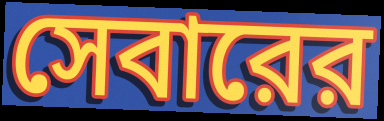
সেবারের